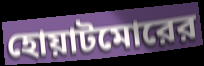
হোয়াটমোরের